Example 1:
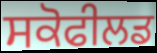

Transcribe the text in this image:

ਸਕੋਫੀਲਡ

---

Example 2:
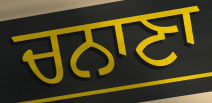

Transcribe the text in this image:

ਚਨਾਣਾ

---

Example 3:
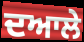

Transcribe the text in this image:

ਦਆਲੇ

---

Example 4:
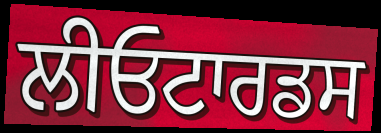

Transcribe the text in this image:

ਲੀਓਟਾਰਡਸ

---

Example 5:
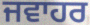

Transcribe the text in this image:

ਜਵਾਹਰ